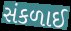
સંકળાઈ